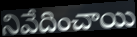
నివేదించాయి